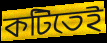
কটিতেই